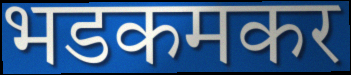
भडकमकर